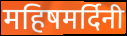
महिषमर्दिनी